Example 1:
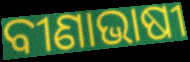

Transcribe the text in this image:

ବୀଣାଭାଷୀ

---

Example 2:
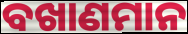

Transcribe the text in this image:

ବଖାଣମାନ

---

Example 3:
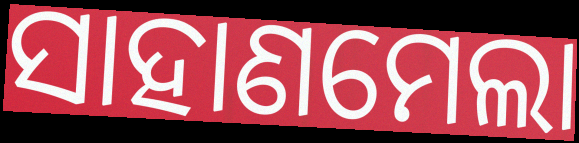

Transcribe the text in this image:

ସାହାଣମେଲା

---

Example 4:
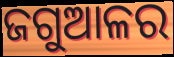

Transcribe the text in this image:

ଜଗୁଆଳର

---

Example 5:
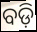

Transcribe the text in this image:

ବଡ଼ି